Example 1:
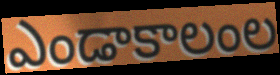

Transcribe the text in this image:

ఎండాకాలంల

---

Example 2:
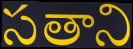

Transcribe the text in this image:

సతాని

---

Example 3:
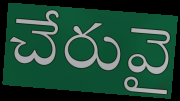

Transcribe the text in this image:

చేరువై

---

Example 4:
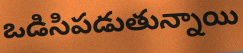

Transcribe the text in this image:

ఒడిసిపడుతున్నాయి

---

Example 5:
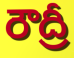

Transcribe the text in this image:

రౌద్రీ